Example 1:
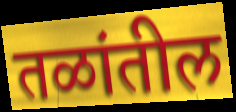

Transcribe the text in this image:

तळांतील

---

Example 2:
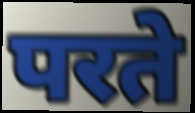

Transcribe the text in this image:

परते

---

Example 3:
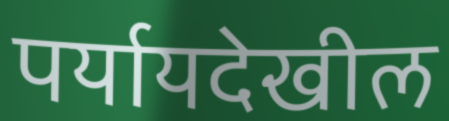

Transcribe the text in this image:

पर्यायदेखील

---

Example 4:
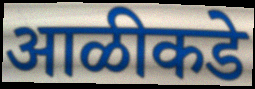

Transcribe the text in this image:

आळीकडे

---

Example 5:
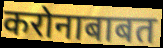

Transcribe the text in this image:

करोनाबाबत